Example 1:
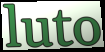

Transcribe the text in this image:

luto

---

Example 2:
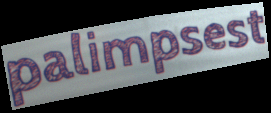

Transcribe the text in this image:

palimpsest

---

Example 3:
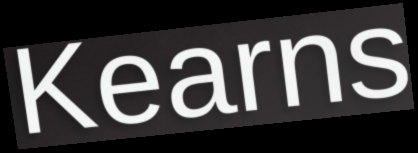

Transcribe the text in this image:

Kearns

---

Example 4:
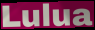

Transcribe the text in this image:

Lulua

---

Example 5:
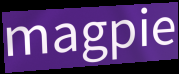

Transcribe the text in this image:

magpie